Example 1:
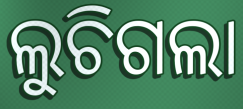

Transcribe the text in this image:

ଲୁଚିଗଲା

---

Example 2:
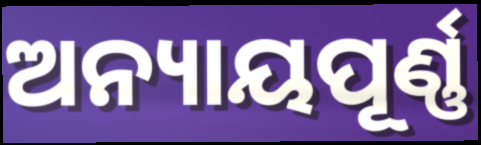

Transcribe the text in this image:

ଅନ୍ୟାୟପୂର୍ଣ୍ଣ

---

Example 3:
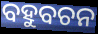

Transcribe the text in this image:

ବହୁବଚନ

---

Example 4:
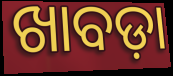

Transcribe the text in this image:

ଖାବଡ଼ା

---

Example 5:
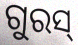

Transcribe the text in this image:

ଗୁରସ୍